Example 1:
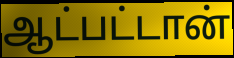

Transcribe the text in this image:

ஆட்பட்டான்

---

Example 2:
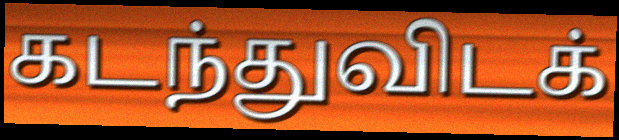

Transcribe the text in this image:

கடந்துவிடக்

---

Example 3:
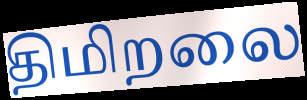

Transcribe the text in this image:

திமிறலை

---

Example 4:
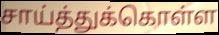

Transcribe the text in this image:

சாய்த்துக்கொள்ள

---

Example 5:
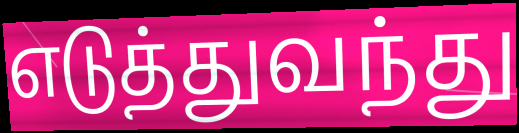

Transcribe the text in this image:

எடுத்துவந்து